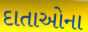
દાતાઓના